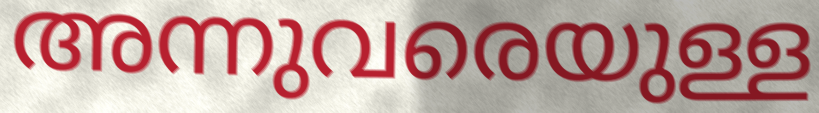
അന്നുവരെയുള്ള